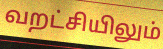
வறட்சியிலும்